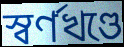
স্বর্ণখণ্ডে